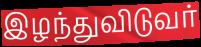
இழந்துவிடுவர்